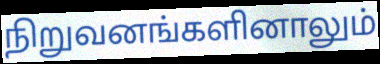
நிறுவனங்களினாலும்